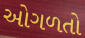
ઓગળતો